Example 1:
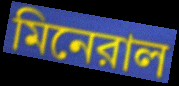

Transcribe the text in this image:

মিনেরাল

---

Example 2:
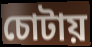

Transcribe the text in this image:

চোটায়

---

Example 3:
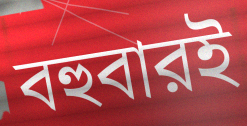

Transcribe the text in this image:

বহুবারই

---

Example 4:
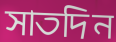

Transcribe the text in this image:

সাতদিন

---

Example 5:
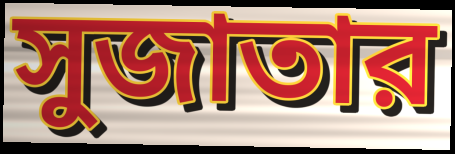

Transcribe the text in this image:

সুজাতার